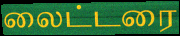
லைட்டரை